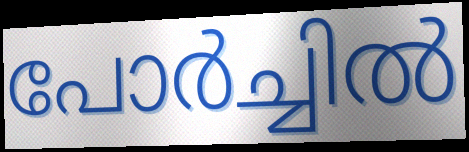
പോർച്ചിൽ